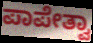
ಪಾಪೇತ್ವಾ